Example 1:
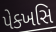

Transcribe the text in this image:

પેક્ખસિ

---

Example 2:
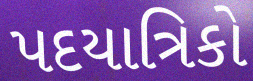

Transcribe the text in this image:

પદયાત્રિકો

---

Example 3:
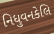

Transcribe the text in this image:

નિધુવનકેલિ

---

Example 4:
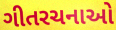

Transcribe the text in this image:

ગીતરચનાઓ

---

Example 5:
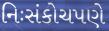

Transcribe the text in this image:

નિઃસંકોચપણે